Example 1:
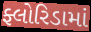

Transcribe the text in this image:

ફ્લોરિડામાં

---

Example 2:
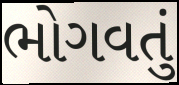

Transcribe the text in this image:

ભોગવતું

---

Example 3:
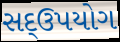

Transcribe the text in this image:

સદ્ઉપયોગ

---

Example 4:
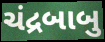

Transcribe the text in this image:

ચંદ્રબાબુ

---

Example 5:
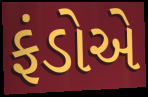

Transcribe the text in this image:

ફંડોએ